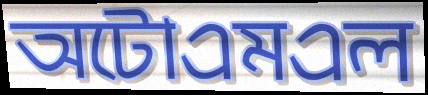
অটোএমএল